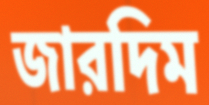
জারদিম